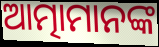
ଆତ୍ମାମାନଙ୍କ